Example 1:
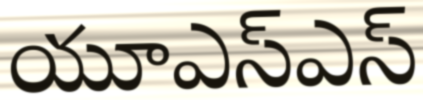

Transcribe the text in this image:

యూఎస్ఎస్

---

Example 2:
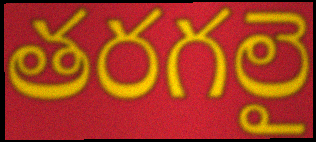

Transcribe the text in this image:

తరగలై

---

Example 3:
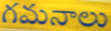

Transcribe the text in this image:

గమనాలు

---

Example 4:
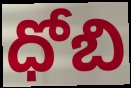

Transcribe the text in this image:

ధోబి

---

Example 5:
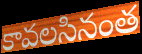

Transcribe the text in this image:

కావలసినంత